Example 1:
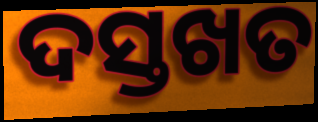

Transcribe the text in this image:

ଦସ୍ତଖତ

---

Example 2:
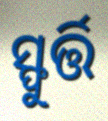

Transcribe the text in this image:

ସ୍ଫୁର୍ତ୍ତି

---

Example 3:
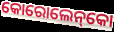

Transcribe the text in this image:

କୋରୋଲେନ୍‌କୋ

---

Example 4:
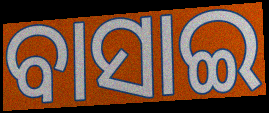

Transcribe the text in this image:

ବାସାଇ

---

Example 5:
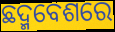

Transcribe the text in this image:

ଛଦ୍ମବେଶରେ